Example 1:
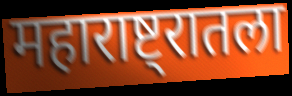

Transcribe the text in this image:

महाराष्ट्रातला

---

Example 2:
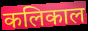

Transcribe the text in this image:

कलिकाल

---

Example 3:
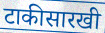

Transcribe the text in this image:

टाकीसारखी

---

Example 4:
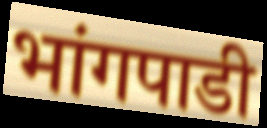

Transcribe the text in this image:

भांगपाडी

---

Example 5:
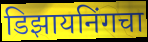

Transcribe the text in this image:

डिझायनिंगचा